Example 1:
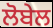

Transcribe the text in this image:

ਲੋਬੇਲ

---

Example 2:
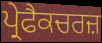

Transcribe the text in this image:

ਪ੍ਰੇਫੈਕਚਰਜ਼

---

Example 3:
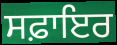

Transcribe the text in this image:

ਸਫ਼ਾਇਰ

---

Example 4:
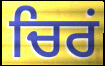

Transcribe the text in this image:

ਚਿਰਂ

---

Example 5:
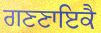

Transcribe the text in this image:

ਗਣਣਾਇਕੈ